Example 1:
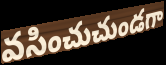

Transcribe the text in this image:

వసించుచుండగా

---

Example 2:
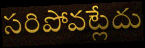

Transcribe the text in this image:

సరిపోవట్లేదు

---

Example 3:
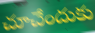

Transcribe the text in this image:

చూచేందుకు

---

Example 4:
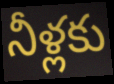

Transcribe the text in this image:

నీళ్లకు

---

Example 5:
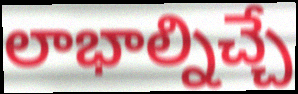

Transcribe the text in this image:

లాభాల్నిచ్చే